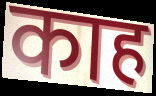
काह